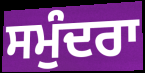
ਸਮੁੰਦਰਾ